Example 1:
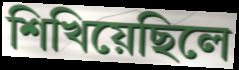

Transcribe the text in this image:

শিখিয়েছিলে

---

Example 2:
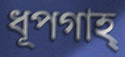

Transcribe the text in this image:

ধূপগাহ্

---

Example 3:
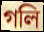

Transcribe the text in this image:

গলি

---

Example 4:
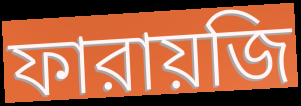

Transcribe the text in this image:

ফারায়জি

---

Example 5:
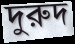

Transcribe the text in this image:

দুরুদ